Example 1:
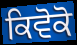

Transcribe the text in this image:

ਕਿਵੋਕੋ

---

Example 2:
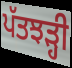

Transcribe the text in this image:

ਪੱਤਝੜ੍ਹੀ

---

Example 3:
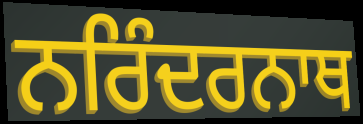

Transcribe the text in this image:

ਨਰਿੰਦਰਨਾਥ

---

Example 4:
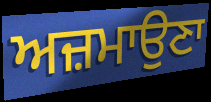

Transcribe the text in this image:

ਅਜ਼ਮਾਉਣਾ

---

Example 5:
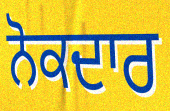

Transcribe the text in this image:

ਨੋਕਦਾਰ